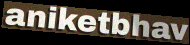
aniketbhav